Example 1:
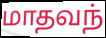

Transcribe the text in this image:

மாதவந்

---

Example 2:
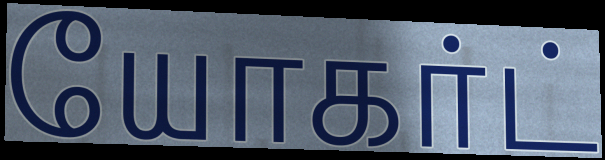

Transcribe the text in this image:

யோகர்ட்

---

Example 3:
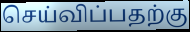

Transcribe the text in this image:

செய்விப்பதற்கு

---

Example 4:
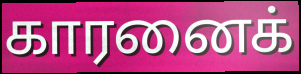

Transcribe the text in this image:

காரனைக்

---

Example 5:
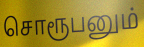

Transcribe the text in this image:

சொரூபனும்